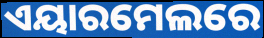
ଏୟାରମେଲରେ